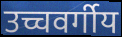
उच्चवर्गीय